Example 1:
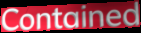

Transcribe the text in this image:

Contained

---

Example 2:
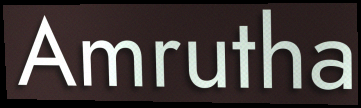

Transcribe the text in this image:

Amrutha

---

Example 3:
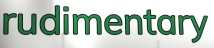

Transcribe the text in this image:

rudimentary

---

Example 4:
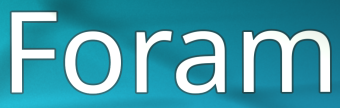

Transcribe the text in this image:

Foram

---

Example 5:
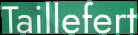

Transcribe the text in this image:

Taillefert